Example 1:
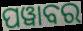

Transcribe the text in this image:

ପୱାବର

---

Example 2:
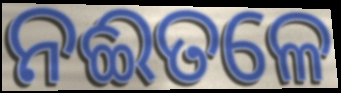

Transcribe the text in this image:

ନଈତଳେ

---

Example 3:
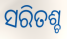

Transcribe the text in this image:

ସରିତଶ୍ଚ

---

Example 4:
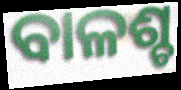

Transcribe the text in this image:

ବାଳଶ୍ଚ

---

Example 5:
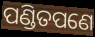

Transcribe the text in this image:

ପଣ୍ଡିତପଣେ